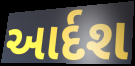
આર્દશ